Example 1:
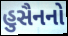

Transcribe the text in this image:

હુસૈનનો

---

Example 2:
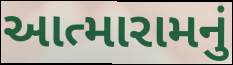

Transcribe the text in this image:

આત્મારામનું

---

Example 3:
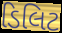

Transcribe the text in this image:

ડિલિટ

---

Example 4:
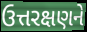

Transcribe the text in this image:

ઉત્તરક્ષણને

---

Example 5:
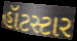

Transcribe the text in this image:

હૉટસ્ટાર